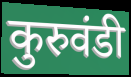
कुरुवंडी